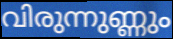
വിരുന്നുണ്ണും